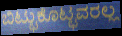
ಬಿಟ್ಟುಕೊಟ್ಟವರಲ್ಲ